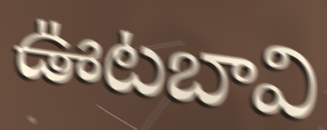
ఊటబావి